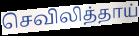
செவிலித்தாய்